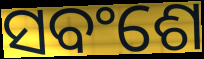
ସବଂଶେ